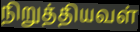
நிறுத்தியவள்